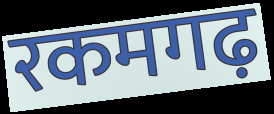
रकमगढ़